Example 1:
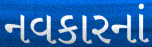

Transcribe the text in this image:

નવકારનાં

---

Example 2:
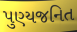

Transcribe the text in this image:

પુણ્યજનિત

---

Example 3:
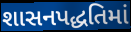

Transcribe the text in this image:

શાસનપદ્ધતિમાં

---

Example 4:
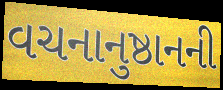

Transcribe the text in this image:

વચનાનુષ્ઠાનની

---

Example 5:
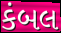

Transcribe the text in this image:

કંબલ